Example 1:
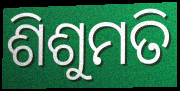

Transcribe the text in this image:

ଶିଶୁମତି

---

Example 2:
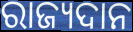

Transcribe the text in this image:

ରାଜ୍ୟଦାନ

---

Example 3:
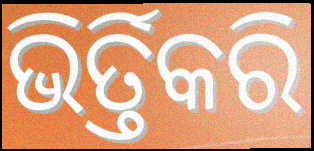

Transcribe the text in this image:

ଭିର୍ତ୍ତିକରି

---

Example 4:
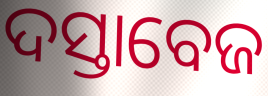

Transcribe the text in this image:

ଦସ୍ତାବେଜ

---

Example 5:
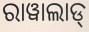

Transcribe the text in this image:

ରାୱାଲାଡ୍